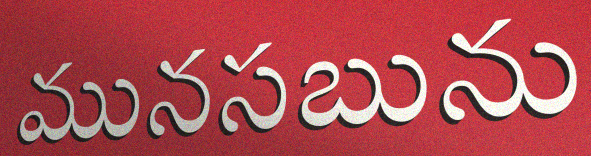
మునసబును